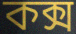
কক্স